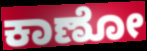
ಕಾಣೋ